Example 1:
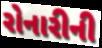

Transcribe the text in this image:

રોનારીની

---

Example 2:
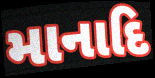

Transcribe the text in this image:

માનાદિ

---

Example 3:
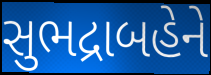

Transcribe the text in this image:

સુભદ્રાબહેને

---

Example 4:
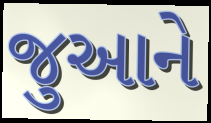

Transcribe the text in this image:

જુઆને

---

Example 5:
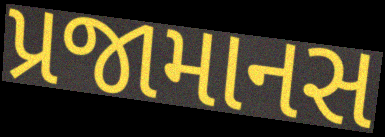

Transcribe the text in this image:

પ્રજામાનસ